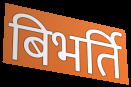
बिभर्ति